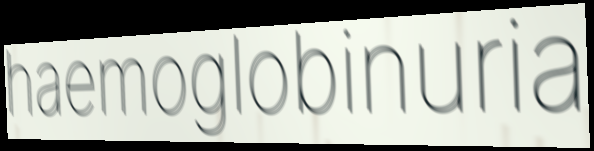
haemoglobinuria